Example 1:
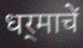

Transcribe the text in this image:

धर्माचें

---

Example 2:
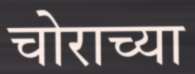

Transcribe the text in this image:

चोराच्या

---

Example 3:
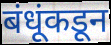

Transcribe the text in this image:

बंधूंकडून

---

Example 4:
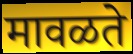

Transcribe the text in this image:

मावळते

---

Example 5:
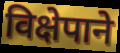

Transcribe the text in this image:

विक्षेपाने